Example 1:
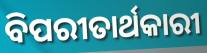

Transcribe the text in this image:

ବିପରୀତାର୍ଥକାରୀ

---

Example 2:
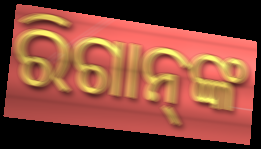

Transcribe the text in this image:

ରିଗାନ୍‌ଙ୍କ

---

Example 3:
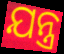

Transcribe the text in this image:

ଯନ୍ତ୍ର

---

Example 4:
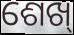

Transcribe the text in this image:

ଶେଖ୍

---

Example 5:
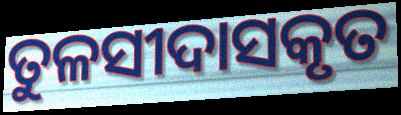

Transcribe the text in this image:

ତୁଳସୀଦାସକୃତ